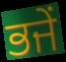
ਭਜੇਂ